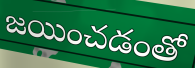
జయించడంతో